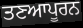
ਤਣਆਪੂਰਨ